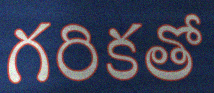
గరికతో